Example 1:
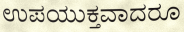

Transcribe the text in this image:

ಉಪಯುಕ್ತವಾದರೂ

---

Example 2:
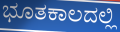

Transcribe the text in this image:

ಭೂತಕಾಲದಲ್ಲಿ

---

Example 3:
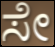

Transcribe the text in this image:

ಸೇ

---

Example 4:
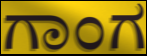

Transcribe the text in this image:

ಗಾಂಗ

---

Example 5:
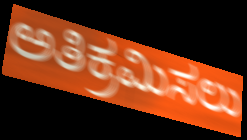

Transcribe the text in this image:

ಅತಿಕ್ರಮಿಸಲು